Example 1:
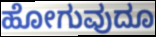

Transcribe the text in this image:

ಹೋಗುವುದೂ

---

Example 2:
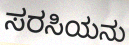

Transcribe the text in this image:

ಸರಸಿಯನು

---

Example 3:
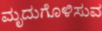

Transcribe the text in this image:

ಮೃದುಗೊಳಿಸುವ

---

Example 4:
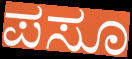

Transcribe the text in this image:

ಪಸೂ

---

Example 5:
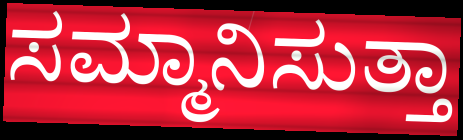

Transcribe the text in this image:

ಸಮ್ಮಾನಿಸುತ್ತಾ